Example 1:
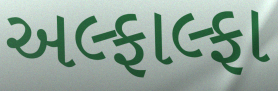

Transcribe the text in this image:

અલ્ફાલ્ફા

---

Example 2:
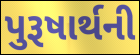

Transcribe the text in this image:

પુરૂષાર્થની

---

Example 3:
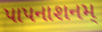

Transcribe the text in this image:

પાપનાશનમ્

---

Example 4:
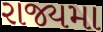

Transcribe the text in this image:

રાજ્યમા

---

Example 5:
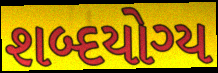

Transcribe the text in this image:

શબ્દયોગ્ય